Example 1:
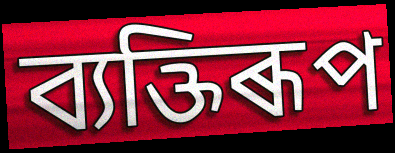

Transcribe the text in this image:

ব্যক্তিৰূপ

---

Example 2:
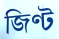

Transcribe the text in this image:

জিণ্ট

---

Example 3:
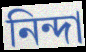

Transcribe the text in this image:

নিন্দা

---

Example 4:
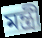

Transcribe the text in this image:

মন্ত্ৰী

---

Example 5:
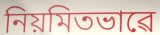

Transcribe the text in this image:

নিয়মিতভাৱে